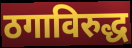
ठगाविरुद्ध